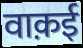
वाक़ई